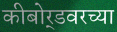
कीबोर्डवरच्या